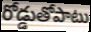
రోడ్డుతోపాటు